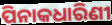
ପିନାକଧାରିଣୀ